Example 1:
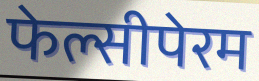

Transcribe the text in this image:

फेल्सीपेरम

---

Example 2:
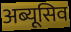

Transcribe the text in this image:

अब्यूसिव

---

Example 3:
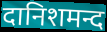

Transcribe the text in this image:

दानिशमन्द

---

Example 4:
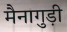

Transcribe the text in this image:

मैनागुड़ी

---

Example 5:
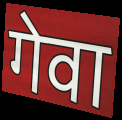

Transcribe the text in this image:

गेवा